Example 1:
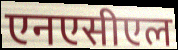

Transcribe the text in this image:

एनएसीएल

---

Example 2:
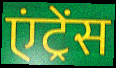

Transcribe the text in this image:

एंट्रेंस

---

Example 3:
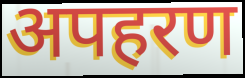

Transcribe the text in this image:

अपहरण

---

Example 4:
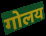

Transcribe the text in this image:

गोलय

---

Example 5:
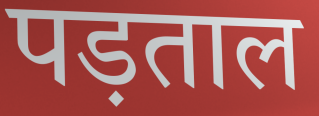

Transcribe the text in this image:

पड़ताल